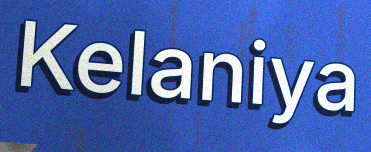
Kelaniya